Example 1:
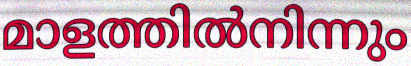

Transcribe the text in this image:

മാളത്തിൽനിന്നും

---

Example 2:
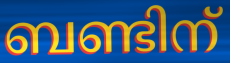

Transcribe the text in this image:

ബണ്ടിന്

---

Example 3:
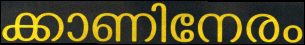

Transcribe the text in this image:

ക്കാണിനേരം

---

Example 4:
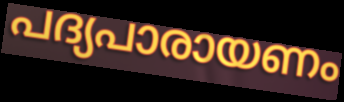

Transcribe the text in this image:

പദ്യപാരായണം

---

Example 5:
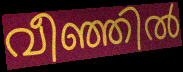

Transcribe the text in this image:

വീഞ്ഞിൽ